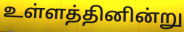
உள்ளத்தினின்று